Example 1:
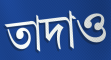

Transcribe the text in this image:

তাদাও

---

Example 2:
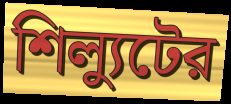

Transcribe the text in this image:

শিল্যুটের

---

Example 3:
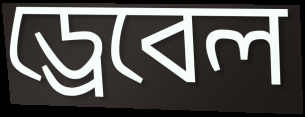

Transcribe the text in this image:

ড্রেবেল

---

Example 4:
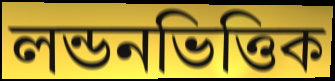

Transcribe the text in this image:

লন্ডনভিত্তিক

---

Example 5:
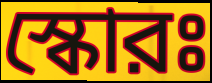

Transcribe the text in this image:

স্কোরঃ